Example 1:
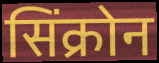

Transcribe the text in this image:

सिंक्रोन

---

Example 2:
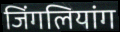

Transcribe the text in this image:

जिंगलियांग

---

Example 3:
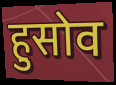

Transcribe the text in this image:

हुसोव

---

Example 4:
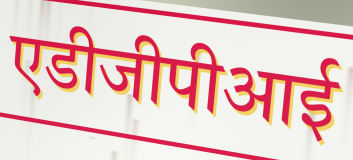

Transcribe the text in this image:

एडीजीपीआई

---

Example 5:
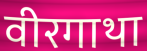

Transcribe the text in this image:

वीरगाथा